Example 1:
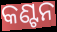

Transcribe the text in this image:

କଣ୍ଟନ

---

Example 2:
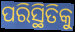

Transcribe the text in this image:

ପରିସ୍ଥିତିକୁ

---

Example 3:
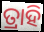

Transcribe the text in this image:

ତ୍ରାହି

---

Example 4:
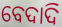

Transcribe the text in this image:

ବେଦାଦି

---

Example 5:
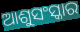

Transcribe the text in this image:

ଆଶୁସଂସ୍କାର